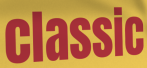
classic